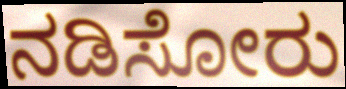
ನಡಿಸೋರು